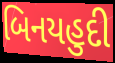
બિનયહુદી